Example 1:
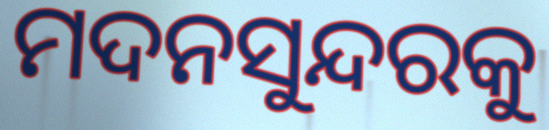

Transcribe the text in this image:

ମଦନସୁନ୍ଦରକୁ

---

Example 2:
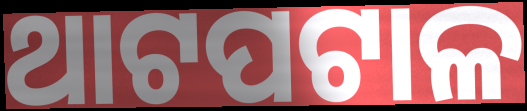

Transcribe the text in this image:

ଥାଟପଟାଳ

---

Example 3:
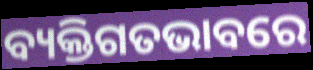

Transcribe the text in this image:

ବ୍ୟକ୍ତିଗତଭାବରେ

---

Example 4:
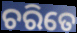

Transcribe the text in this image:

ଚରିତେ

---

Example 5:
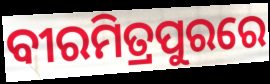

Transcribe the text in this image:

ବୀରମିତ୍ରପୁରରେ